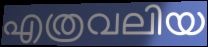
എത്രവലിയ